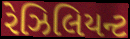
રેઝિલિયન્ટ